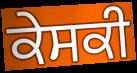
ਕੇਸਕੀ